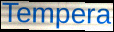
Tempera